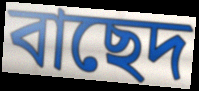
বাছেদ